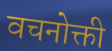
वचनोक्ती